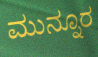
ಮುನ್ನೂರ